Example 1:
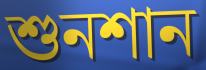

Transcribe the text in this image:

শুনশান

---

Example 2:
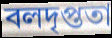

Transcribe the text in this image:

বলদৃপ্ততা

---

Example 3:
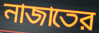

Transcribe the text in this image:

নাজাতের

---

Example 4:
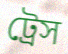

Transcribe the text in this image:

ট্রেস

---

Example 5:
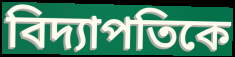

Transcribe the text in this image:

বিদ্যাপতিকে